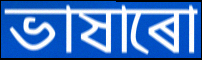
ভাষাৰো